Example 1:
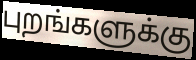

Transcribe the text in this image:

புறங்களுக்கு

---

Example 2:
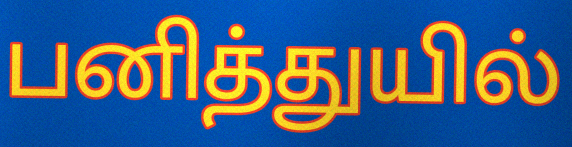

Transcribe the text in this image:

பனித்துயில்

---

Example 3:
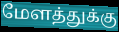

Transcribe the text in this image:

மேளத்துக்கு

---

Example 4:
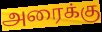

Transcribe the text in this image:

அரைக்கு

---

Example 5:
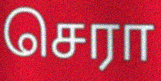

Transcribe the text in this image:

செரா